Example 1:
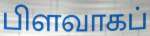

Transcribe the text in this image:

பிளவாகப்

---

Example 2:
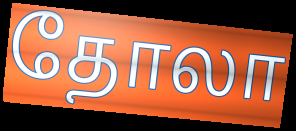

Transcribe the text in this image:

தோலா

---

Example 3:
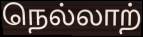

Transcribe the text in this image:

நெல்லாற்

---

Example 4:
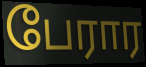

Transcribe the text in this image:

பேரார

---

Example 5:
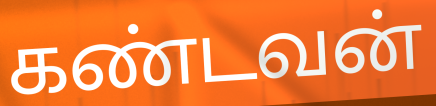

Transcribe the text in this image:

கண்டவன்